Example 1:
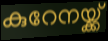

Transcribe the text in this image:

കുറേനയ്ക്ക്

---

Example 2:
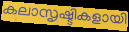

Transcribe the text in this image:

കലാസൃഷ്ടികളായി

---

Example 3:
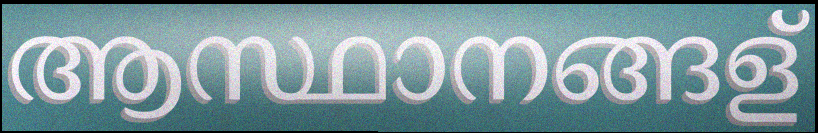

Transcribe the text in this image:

ആസ്ഥാനങ്ങള്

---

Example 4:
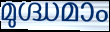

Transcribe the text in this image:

മുഗ്ദ്ധമാം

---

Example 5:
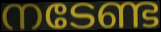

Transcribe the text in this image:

നടേണ്ട